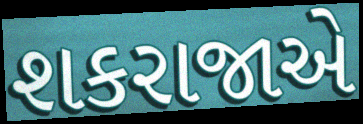
શકરાજાએ